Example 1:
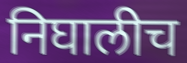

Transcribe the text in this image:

निघालीच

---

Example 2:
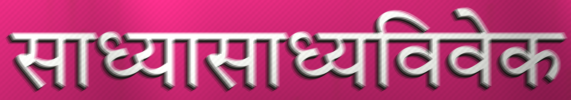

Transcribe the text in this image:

साध्यासाध्यविवेक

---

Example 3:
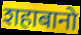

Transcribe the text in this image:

शहाबानो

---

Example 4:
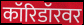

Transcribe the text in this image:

कॉरिडॉरवर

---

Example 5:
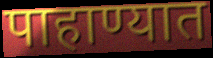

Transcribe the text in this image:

पाहाण्यात